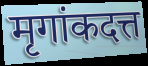
मृगांकदत्त